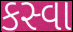
કસ્વા